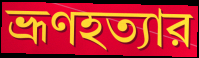
ভ্রূণহত্যার